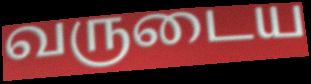
வருடைய